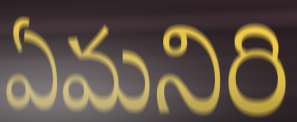
ఏమనిరి